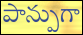
పాన్పుగా